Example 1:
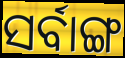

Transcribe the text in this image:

ସର୍ବାଙ୍ଗ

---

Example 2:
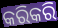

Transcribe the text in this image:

କରିକରି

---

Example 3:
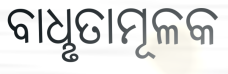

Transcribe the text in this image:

ବାଧୢତାମୂଳକ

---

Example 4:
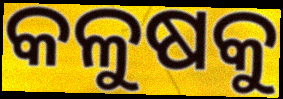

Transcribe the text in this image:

କଳୁଷକୁ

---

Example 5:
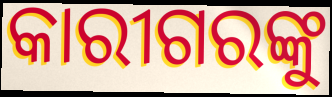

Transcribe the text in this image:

କାରୀଗରଙ୍କୁ